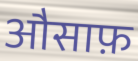
औसाफ़